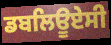
ਡਬਲਿਊਏਸੀ